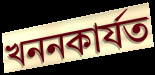
খননকাৰ্যত